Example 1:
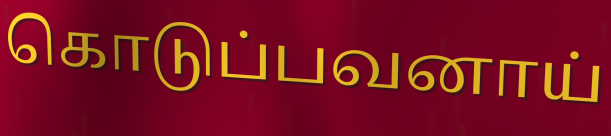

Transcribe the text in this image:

கொடுப்பவனாய்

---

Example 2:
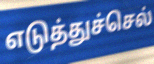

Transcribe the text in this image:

எடுத்துச்செல்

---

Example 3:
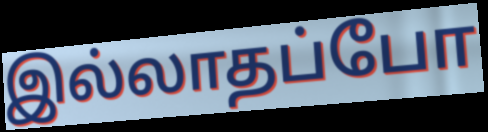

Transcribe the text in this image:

இல்லாதப்போ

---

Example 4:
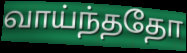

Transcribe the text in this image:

வாய்ந்ததோ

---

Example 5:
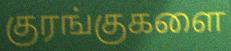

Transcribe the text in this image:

குரங்குகளை